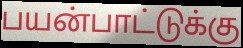
பயன்பாட்டுக்கு